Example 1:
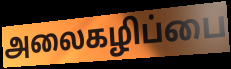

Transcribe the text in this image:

அலைகழிப்பை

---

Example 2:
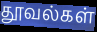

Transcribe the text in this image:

தூவல்கள்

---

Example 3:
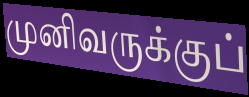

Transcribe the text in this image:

முனிவருக்குப்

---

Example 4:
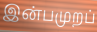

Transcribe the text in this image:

இன்பமுறப்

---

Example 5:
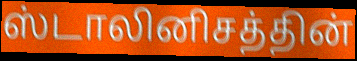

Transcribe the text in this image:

ஸ்டாலினிசத்தின்